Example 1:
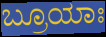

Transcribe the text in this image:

ಬ್ರೂಯಾಃ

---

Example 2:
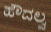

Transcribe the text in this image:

ಹೌದಲ್ವ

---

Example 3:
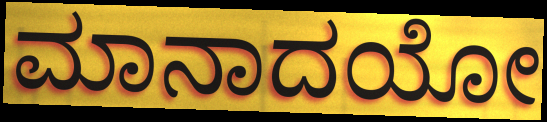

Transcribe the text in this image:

ಮಾನಾದಯೋ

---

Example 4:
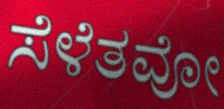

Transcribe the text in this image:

ಸೆಳೆತವೋ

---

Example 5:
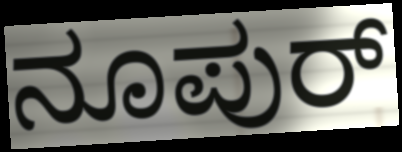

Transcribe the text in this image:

ನೂಪುರ್